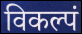
विकल्पं